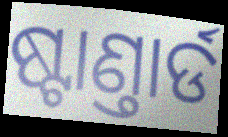
ଷ୍ଟାଣ୍ତାର୍ଡ